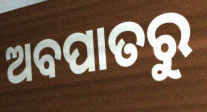
ଅବପାତରୁ